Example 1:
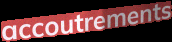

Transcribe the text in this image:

accoutrements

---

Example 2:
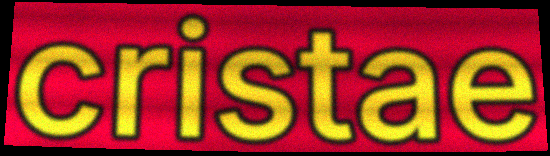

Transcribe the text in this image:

cristae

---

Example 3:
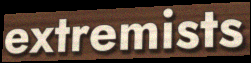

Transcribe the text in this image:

extremists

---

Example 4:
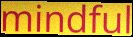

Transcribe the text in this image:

mindful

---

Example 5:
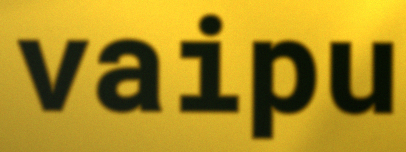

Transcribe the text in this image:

vaipu